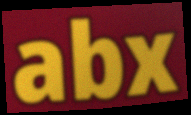
abx